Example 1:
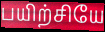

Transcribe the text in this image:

பயிற்சியே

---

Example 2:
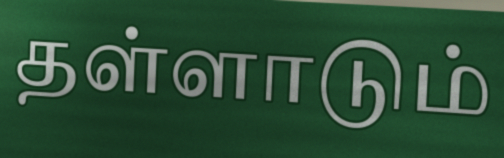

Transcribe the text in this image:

தள்ளாடும்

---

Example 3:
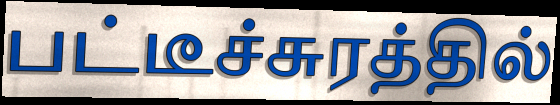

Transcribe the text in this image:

பட்டீச்சுரத்தில்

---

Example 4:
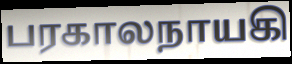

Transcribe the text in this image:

பரகாலநாயகி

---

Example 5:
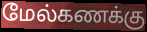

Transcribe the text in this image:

மேல்கணக்கு